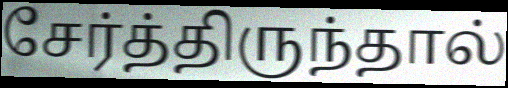
சேர்த்திருந்தால்